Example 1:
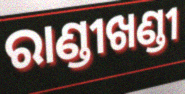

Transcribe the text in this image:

ରାଣ୍ଡୀଖଣ୍ଡୀ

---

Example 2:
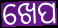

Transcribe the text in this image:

ଖେପ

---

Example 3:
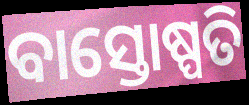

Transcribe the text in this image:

ବାସ୍ତୋଷ୍ପତି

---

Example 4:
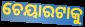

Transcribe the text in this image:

ଚେୟାରଟାକୁ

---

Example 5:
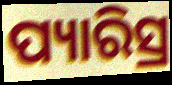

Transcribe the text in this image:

ପ୍ୟାରିସ୍ର